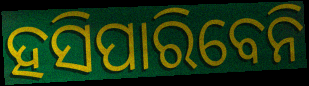
ହସିପାରିବେନି